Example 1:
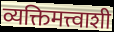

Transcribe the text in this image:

व्यक्तिमत्त्वाशी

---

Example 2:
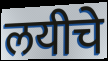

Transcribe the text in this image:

लयीचे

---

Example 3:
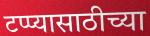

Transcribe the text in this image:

टप्प्यासाठीच्या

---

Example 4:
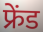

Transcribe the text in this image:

फ्रेंड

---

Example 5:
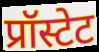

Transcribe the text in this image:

प्रॉस्टेट